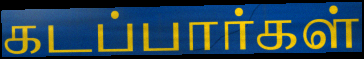
கடப்பார்கள்